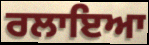
ਰਲਾਇਆ